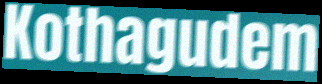
Kothagudem